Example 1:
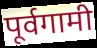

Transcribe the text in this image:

पूर्वगामी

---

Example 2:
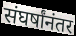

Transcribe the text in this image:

संघर्षांनंतर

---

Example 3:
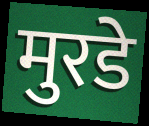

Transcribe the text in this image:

मुरडे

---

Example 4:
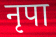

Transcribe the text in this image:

नृपा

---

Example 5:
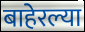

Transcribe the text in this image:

बाहेरल्या